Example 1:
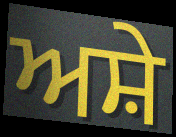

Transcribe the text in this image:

ਅਸ਼ੇ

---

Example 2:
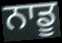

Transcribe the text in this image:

ਨਾਡੂ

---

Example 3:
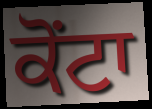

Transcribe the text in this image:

ਕੋਂਟਾ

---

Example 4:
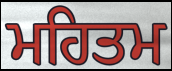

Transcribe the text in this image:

ਮਹਿਤਮ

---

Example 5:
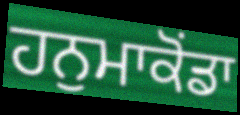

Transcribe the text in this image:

ਹਨੁਮਾਕੋਂਡਾ